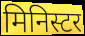
मिनिस्टर